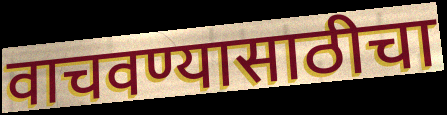
वाचवण्यासाठीचा